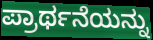
ಪ್ರಾರ್ಥನೆಯನ್ನು